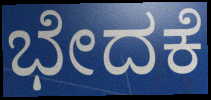
ಭೇದಕೆ